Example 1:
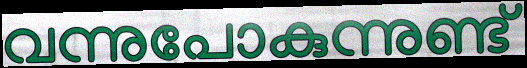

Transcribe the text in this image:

വന്നുപോകുന്നുണ്ട്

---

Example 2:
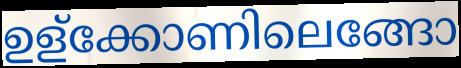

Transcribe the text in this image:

ഉള്ക്കോണിലെങ്ങോ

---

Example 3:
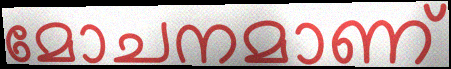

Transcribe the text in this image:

മോചനമാണ്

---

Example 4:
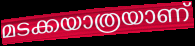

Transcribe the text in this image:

മടക്കയാത്രയാണ്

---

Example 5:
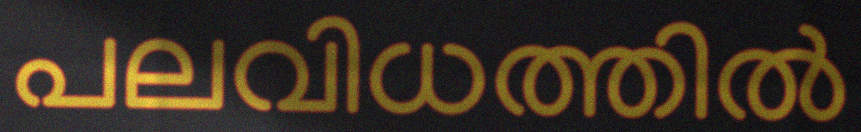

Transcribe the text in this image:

പലവിധത്തിൽ